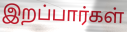
இறப்பார்கள்